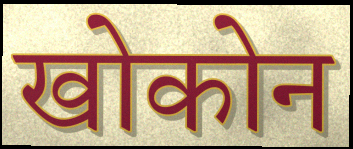
खोकोन